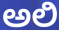
ಅಲಿ